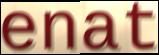
enat